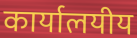
कार्यालयीय